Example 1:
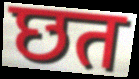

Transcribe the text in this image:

छत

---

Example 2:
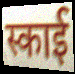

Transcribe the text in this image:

स्काई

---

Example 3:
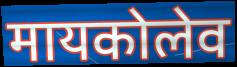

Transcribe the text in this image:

मायकोलेव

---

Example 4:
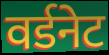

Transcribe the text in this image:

वर्डनेट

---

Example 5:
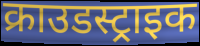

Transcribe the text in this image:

क्राउडस्ट्राइक